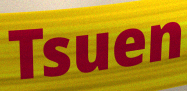
Tsuen